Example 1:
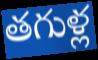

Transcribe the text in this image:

తగుళ్ల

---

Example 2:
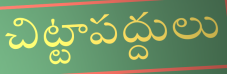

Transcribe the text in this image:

చిట్టాపద్దులు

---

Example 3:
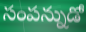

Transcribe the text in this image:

సంపన్నుడో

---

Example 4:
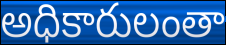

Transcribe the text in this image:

అధికారులంతా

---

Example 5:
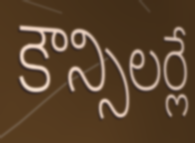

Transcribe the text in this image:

కౌన్సిలర్లే